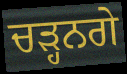
ਚੜ੍ਹਨਗੇ